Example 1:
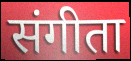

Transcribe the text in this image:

संगीता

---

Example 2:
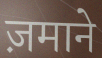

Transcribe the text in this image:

ज़माने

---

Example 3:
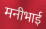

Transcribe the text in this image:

मनीभाई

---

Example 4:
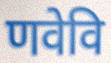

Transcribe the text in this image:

णवेवि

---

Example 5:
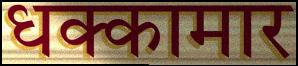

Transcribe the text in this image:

धक्कामार